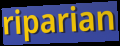
riparian